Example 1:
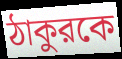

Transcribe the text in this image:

ঠাকুরকে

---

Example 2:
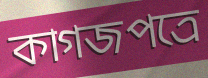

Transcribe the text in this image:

কাগজপত্রে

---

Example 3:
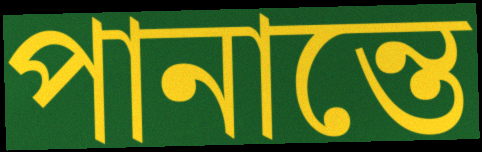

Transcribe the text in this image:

পানান্তে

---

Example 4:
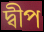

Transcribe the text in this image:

দ্বীপ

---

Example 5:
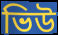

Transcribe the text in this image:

ভিউ